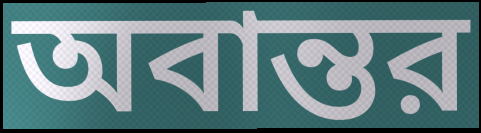
অবান্তর